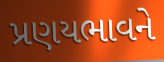
પ્રણયભાવને